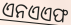
ଏନଏଏଫ